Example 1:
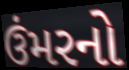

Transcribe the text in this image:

ઉંમરનો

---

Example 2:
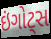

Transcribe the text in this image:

ઇંગોટ્સ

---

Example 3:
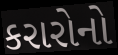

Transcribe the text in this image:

કરારોનો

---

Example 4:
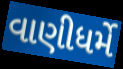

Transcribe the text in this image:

વાણીધર્મે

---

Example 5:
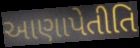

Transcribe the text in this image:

આણાપેતીતિ